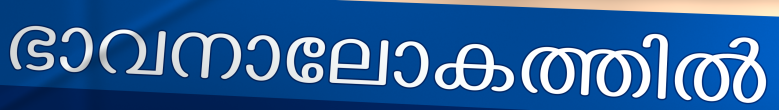
ഭാവനാലോകത്തിൽ